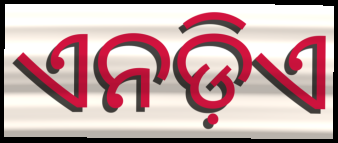
ଏନଡ଼ିଏ